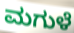
ಮಗುಳೆ